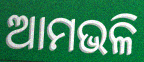
ଆମଭଳି